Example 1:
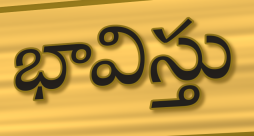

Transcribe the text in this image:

భావిస్తు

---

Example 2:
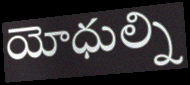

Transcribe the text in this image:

యోధుల్ని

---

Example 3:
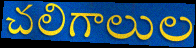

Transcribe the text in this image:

చలిగాలుల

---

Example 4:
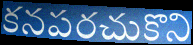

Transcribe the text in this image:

కనపరచుకొని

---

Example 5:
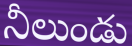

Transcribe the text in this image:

నీలుండు